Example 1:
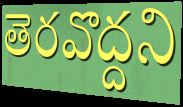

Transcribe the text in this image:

తెరవొద్దని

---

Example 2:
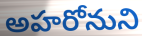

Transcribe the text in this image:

అహరోనుని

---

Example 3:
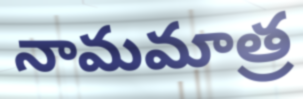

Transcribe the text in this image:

నామమాత్ర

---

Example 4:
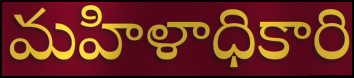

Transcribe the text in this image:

మహిళాధికారి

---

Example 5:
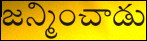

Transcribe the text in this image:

జన్మించాడు